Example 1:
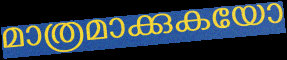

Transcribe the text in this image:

മാത്രമാക്കുകയോ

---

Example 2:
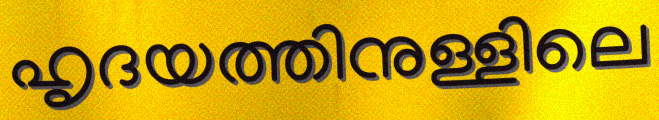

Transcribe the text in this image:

ഹൃദയത്തിനുള്ളിലെ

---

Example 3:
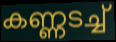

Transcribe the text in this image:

കണ്ണടച്ച്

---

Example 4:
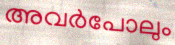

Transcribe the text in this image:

അവർപോലും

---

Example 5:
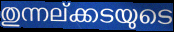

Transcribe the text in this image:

തുന്നല്ക്കടയുടെ